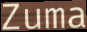
Zuma